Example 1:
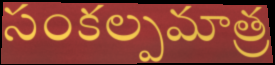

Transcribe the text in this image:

సంకల్పమాత్ర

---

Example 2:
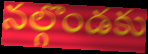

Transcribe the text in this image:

నల్గొండకు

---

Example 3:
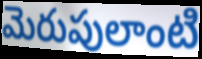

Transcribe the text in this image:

మెరుపులాంటి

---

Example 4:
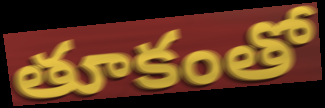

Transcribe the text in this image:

తూకంతో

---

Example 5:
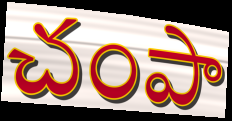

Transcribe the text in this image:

చంపా